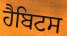
ਹੈਬਿਟਸ